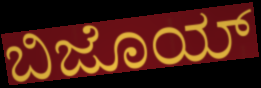
ಬಿಜೊಯ್